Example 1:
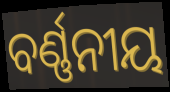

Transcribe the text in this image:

ବର୍ଣ୍ଣନୀୟ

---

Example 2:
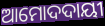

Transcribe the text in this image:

ଆମୋଦଦାୟୀ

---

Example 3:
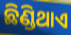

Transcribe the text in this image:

ଛିଣ୍ଡିଥାଏ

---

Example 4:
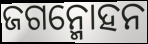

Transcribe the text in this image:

ଜଗନ୍ମୋହନ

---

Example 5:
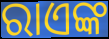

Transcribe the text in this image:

ରାଏଙ୍କ